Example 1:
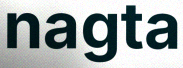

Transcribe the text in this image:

nagta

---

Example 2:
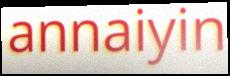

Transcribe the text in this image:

annaiyin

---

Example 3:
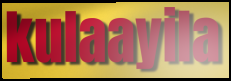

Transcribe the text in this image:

kulaayila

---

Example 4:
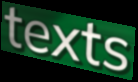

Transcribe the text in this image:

texts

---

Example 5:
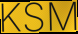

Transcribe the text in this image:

KSM